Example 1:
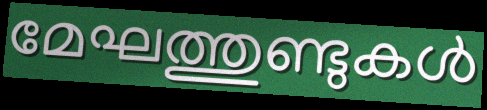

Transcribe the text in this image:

മേഘത്തുണ്ടുകൾ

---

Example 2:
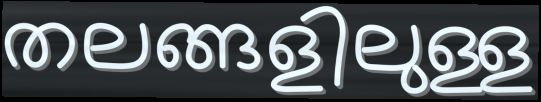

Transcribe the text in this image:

തലങ്ങളിലുള്ള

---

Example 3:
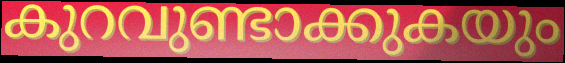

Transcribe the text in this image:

കുറവുണ്ടാക്കുകയും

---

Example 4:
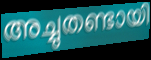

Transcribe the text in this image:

അച്ചുതണ്ടായി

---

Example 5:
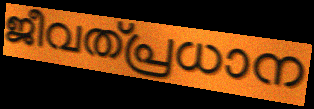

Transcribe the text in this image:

ജീവത്പ്രധാന